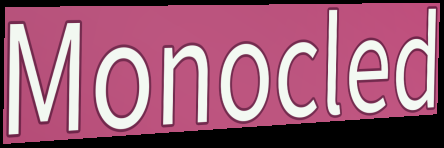
Monocled